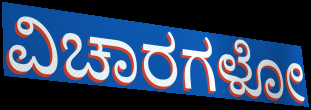
ವಿಚಾರಗಳೋ